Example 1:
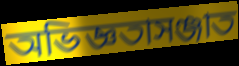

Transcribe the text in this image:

অভিজ্ঞতাসঞ্জাত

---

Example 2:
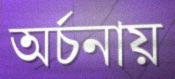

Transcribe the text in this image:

অর্চনায়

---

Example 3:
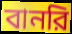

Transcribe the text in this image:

বানরি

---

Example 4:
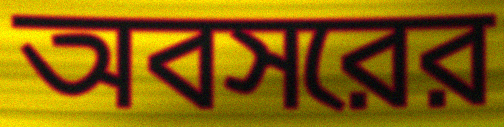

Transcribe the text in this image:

অবসরের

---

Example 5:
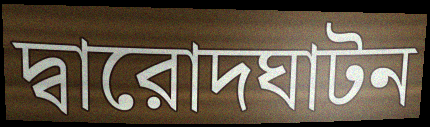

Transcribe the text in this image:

দ্বারোদঘাটন